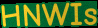
HNWIs